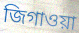
জিগাওয়া